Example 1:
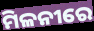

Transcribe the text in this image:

ମିଳନୀରେ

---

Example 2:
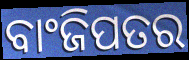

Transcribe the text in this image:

ବାଂଜିପତର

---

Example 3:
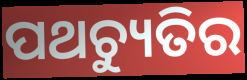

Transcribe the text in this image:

ପଥଚ୍ୟୁତିର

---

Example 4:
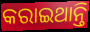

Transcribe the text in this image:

କରାଇଥାନ୍ତି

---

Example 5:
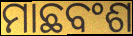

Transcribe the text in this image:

ମାଛବଂଶ